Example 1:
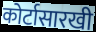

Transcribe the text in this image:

कोर्टासारखी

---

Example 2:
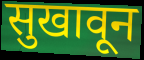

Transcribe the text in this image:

सुखावून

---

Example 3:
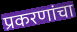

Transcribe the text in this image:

प्रकरणांचा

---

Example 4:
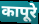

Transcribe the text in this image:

कापूरे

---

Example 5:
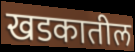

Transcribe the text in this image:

खडकातील